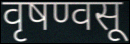
वृषण्वसू